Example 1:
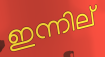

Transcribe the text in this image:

ഇന്നില്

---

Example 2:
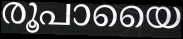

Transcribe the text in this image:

രൂപായൈ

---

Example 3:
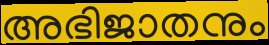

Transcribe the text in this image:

അഭിജാതനും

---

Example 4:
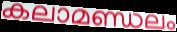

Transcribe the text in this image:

കലാമണ്ഡലം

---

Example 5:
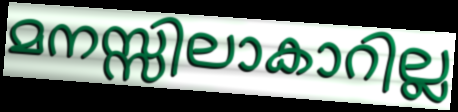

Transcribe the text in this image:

മനസ്സിലാകാറില്ല